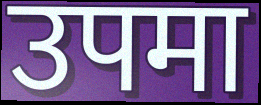
उपमा